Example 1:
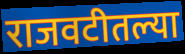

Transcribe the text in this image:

राजवटीतल्या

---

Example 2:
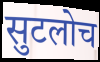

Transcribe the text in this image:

सुटलोच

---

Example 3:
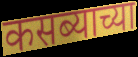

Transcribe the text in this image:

कसब्याच्या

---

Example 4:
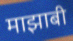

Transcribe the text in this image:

माझाबी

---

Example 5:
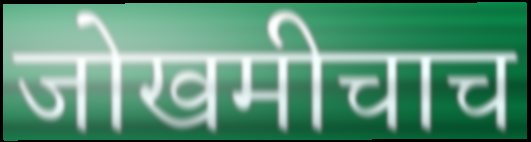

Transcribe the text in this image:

जोखमीचाच